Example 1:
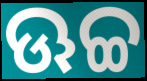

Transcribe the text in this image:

ଊଚ୍ଚ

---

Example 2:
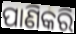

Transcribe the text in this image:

ପାଣିକରି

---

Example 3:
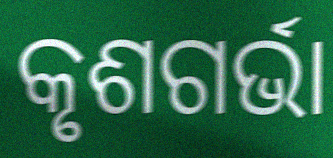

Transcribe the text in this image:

କୃଶଗର୍ଭା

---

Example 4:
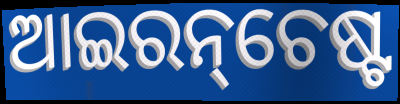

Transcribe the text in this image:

ଆଇରନ୍‌ଚେଷ୍ଟ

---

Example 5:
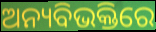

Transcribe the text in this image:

ଅନ୍ୟବିଭକ୍ତିରେ